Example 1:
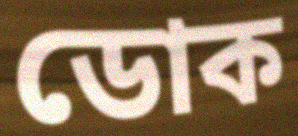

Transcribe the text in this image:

ডোক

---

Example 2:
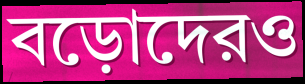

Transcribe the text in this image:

বড়োদেরও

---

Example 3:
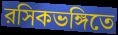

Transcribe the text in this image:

রসিকভঙ্গিতে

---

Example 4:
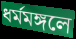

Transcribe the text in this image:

ধর্মমঙ্গলে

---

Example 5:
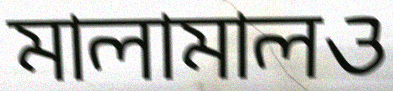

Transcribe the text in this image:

মালামালও